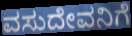
ವಸುದೇವನಿಗೆ